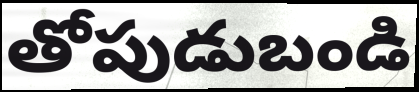
తోపుడుబండి